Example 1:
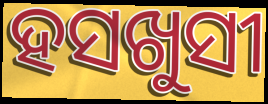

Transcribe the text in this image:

ହସଖୁସୀ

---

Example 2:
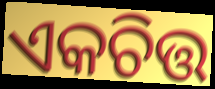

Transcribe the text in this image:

ଏକଚିତ୍ତ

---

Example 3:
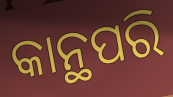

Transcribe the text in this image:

କାନ୍ଥପରି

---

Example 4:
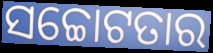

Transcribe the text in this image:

ସଚ୍ଚୋଟତାର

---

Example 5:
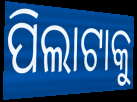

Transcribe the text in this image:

ପିଲାଟାକୁ